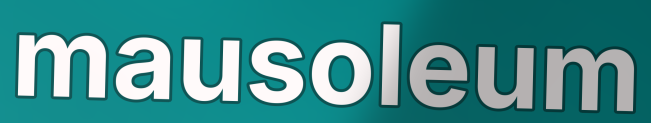
mausoleum